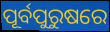
ପୂର୍ବପୁରୁଷରେ